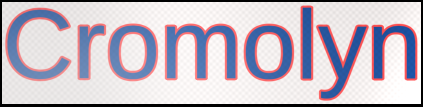
Cromolyn